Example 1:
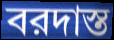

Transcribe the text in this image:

বরদাস্ত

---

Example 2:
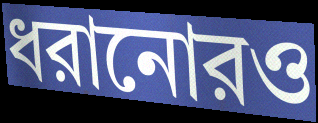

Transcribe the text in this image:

ধরানোরও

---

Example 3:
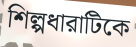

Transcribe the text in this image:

শিল্পধারাটিকে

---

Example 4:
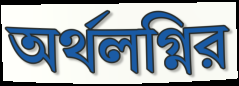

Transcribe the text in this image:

অর্থলগ্নির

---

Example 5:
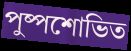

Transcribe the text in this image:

পুষ্পশোভিত